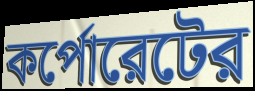
কর্পোরেটের